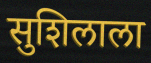
सुशिलाला